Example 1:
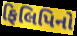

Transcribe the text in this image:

ફિલિપિનો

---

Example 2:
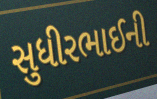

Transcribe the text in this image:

સુધીરભાઈની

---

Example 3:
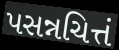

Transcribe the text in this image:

પસન્નચિત્તં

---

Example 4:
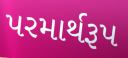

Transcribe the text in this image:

પરમાર્થરૂપ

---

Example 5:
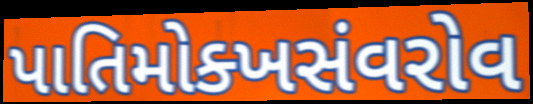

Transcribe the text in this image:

પાતિમોક્ખસંવરોવ